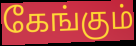
கேங்கும்